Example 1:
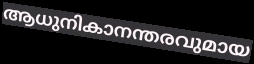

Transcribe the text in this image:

ആധുനികാനന്തരവുമായ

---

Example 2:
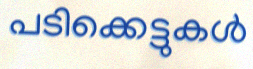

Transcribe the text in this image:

പടിക്കെട്ടുകൾ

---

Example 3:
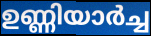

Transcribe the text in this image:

ഉണ്ണിയാർച്ച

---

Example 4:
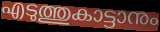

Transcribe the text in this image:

എടുത്തുകാട്ടാനും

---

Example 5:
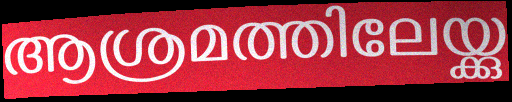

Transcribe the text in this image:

ആശ്രമത്തിലേയ്ക്കു